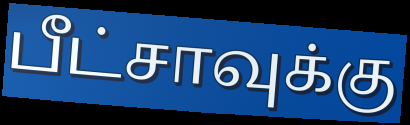
பீட்சாவுக்கு